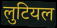
लुटियल